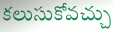
కలుసుకోవచ్చు